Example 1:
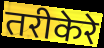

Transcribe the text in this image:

तरीकेरे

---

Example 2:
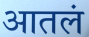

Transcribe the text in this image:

आतलं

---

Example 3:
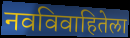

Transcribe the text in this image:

नवविवाहितेला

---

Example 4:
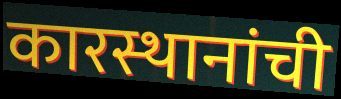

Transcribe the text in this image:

कारस्थानांची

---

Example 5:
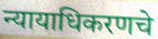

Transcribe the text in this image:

न्यायाधिकरणचे